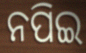
ନପିଇ